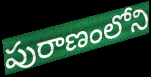
పురాణంలోని